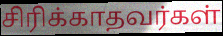
சிரிக்காதவர்கள்